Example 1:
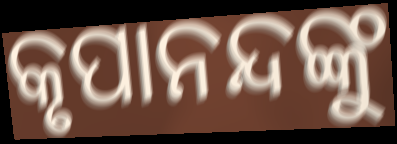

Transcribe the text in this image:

କୃପାନନ୍ଦଙ୍କୁ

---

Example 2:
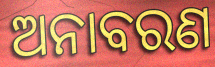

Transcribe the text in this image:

ଅନାବରଣ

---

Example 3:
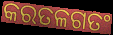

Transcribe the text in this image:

କରତଳଗତଂ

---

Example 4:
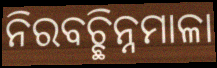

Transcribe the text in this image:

ନିରବଚ୍ଛିନ୍ନମାଳା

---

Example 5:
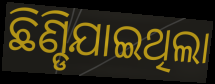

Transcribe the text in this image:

ଛିଣ୍ଡିଯାଇଥିଲା